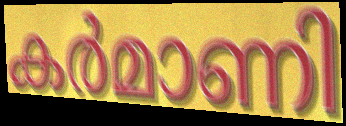
കർമാണി